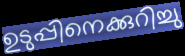
ഉടുപ്പിനെക്കുറിച്ചു